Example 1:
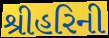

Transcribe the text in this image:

શ્રીહરિની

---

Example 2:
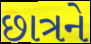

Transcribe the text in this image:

છાત્રને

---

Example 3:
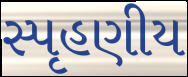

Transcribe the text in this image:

સ્પૃહણીય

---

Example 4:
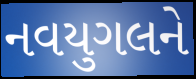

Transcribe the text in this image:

નવયુગલને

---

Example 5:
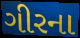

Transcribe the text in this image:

ગીરના